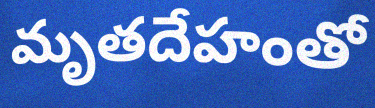
మృతదేహంతో